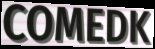
COMEDK